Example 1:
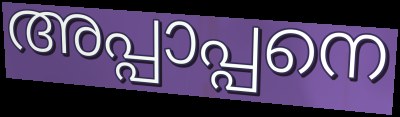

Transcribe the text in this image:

അപ്പാപ്പനെ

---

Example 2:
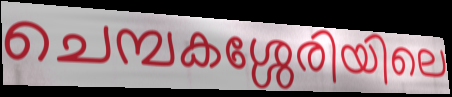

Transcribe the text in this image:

ചെമ്പകശ്ശേരിയിലെ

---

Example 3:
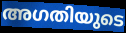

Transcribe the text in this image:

അഗതിയുടെ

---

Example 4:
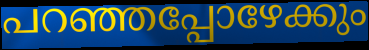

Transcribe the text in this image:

പറഞ്ഞപ്പോഴേക്കും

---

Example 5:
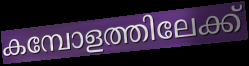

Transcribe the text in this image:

കമ്പോളത്തിലേക്ക്